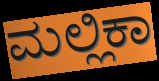
ಮಲ್ಲಿಕಾ